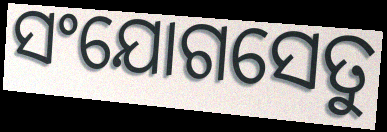
ସଂଯୋଗସେତୁ